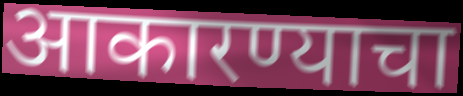
आकारण्याचा